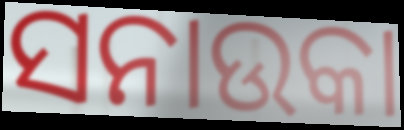
ସନାଉକା